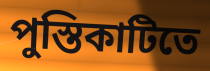
পুস্তিকাটিতে